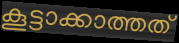
കൂട്ടാക്കാത്തത്